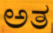
ಅತ